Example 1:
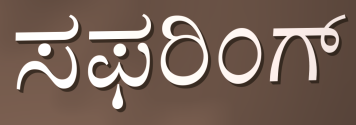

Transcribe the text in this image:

ಸಫರಿಂಗ್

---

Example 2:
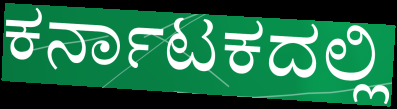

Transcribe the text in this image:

ಕರ್ನಾಟಕದಲ್ಲಿ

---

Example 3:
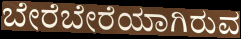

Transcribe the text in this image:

ಬೇರೆಬೇರೆಯಾಗಿರುವ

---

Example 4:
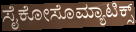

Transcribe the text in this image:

ಸೈಕೋಸೊಮ್ಯಾಟಿಕ್ಸ್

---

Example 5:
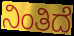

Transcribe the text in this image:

ನಿಂತಿದೆ